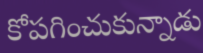
కోపగించుకున్నాడు